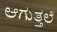
ಆಗುತ್ತಲೆ